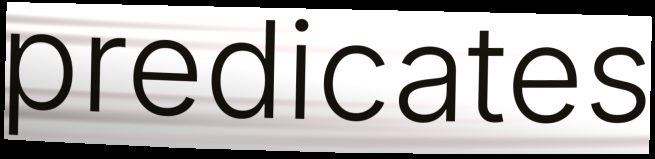
predicates